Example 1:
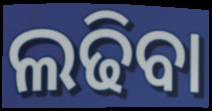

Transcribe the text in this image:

ଲଢିବା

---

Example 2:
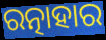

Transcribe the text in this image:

ରତ୍ନାହାର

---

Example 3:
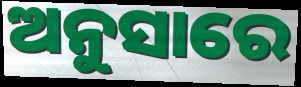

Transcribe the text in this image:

ଅନୁସାରେ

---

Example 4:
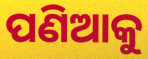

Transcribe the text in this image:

ପଣିଆକୁ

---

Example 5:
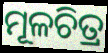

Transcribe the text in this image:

ମୂଳଚିତ୍ର